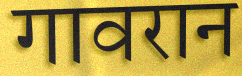
गावरान